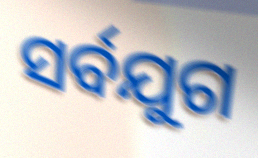
ସର୍ବଯୁଗ